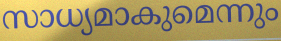
സാധ്യമാകുമെന്നും